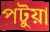
পটুয়া